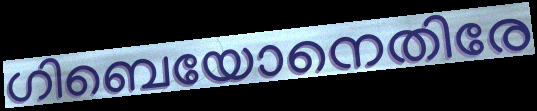
ഗിബെയോനെതിരേ